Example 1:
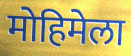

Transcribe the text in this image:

मोहिमेला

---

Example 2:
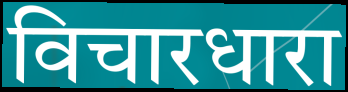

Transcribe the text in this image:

विचारधारा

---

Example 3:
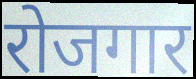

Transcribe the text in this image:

रोजगार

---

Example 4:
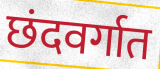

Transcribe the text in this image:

छंदवर्गात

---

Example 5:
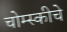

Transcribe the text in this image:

चोम्स्कीचे